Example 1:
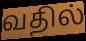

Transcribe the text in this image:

வதில்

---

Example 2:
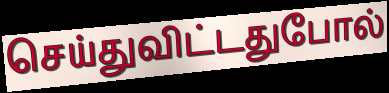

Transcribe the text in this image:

செய்துவிட்டதுபோல்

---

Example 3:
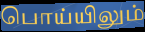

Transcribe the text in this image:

பொய்யிலும்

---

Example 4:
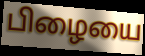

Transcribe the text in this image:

பிழையை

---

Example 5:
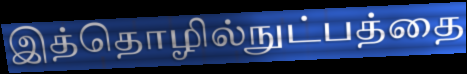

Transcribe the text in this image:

இத்தொழில்நுட்பத்தை